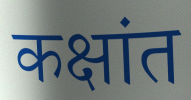
कक्षांत